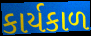
કાર્યકાળ